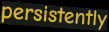
persistently